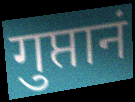
गुप्तानं